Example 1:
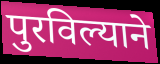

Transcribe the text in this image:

पुरविल्याने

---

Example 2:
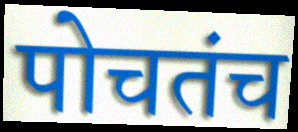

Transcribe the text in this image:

पोचतंच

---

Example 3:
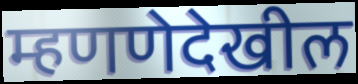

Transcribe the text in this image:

म्हणणेदेखील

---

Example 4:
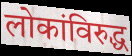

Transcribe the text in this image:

लोकांविरुद्ध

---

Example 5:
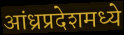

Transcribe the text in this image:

आंध्रप्रदेशमध्ये